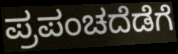
ಪ್ರಪಂಚದೆಡೆಗೆ